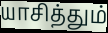
யாசித்தும்